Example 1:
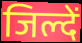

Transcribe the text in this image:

जिल्दें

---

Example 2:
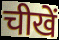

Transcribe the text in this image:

चीखें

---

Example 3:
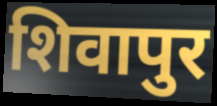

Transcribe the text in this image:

शिवापुर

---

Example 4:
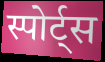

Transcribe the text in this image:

स्पोर्ट्स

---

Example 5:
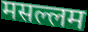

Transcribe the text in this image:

मसल्लम